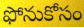
ఫోనుకోసం